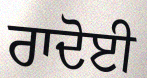
ਰਾਦੋਈ